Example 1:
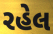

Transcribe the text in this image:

રહેલ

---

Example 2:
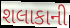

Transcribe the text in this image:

શલાકાની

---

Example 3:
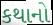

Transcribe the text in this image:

કથાનો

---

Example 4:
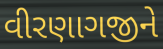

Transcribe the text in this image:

વીરણાગજીને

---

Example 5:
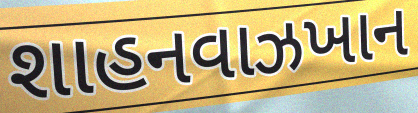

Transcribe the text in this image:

શાહનવાઝખાન